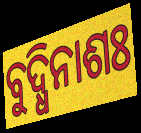
ବୁଦ୍ଧିନାଶଃ